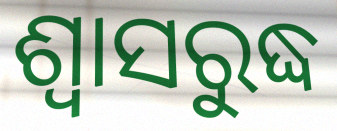
ଶ୍ବାସରୁଦ୍ଧ